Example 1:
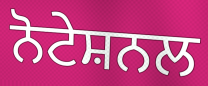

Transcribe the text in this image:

ਨੋਟੇਸ਼ਨਲ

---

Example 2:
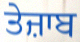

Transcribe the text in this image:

ਤੇਜ਼ਾਬ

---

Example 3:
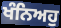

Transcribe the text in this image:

ਖੰਨਿਅਹੁ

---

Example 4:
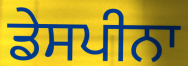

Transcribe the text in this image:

ਡੇਸਪੀਨਾ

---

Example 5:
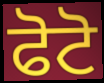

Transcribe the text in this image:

ਫੋਟੋ